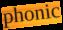
phonic